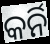
କର୍ନି